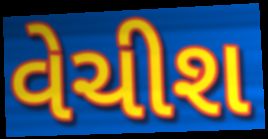
વેચીશ